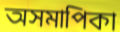
অসমাপিকা